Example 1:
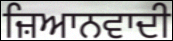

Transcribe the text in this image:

ਜ਼ਿਆਨਵਾਦੀ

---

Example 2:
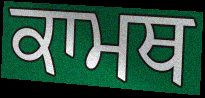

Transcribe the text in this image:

ਕਾਮਥ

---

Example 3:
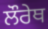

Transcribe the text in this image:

ਲੌਰੇਥ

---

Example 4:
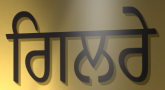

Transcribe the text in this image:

ਗਿਲਰੇ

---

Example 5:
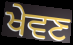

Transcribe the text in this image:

ਖੇਵਣ